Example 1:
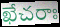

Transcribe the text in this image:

ఖేచరాః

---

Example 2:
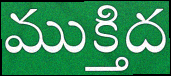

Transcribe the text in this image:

ముక్తిద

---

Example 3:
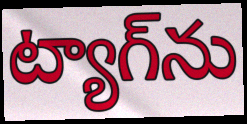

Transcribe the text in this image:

ట్యాగ్‌ను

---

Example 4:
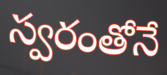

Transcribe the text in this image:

స్వరంతోనే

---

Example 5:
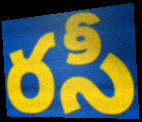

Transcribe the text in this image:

రసీ